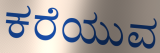
ಕರೆಯುವ